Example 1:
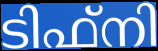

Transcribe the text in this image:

ടിഫ്നി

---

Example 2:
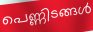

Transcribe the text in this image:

പെണ്ണിടങ്ങൾ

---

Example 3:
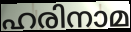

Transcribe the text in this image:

ഹരിനാമ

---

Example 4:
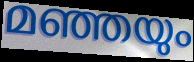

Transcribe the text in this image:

മഞ്ഞയും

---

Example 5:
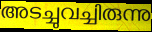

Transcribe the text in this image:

അടച്ചുവച്ചിരുന്നു